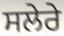
ਸਲੇਰੇ